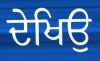
ਦੇਖਿਉ